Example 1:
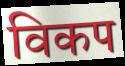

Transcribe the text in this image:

विकप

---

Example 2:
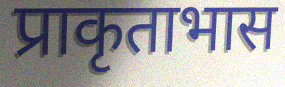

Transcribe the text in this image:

प्राकृताभास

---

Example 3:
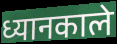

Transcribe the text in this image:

ध्यानकाले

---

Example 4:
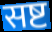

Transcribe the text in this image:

सष्ट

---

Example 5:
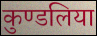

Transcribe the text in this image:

कुण्डलिया